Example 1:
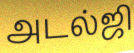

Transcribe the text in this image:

அடல்ஜி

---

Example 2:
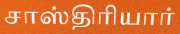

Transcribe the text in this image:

சாஸ்திரியார்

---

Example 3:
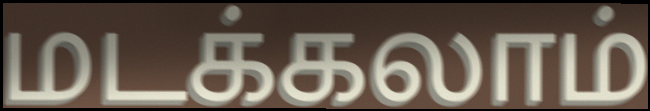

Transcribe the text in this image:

மடக்கலாம்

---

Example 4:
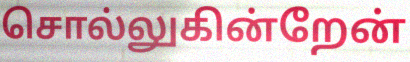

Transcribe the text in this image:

சொல்லுகின்றேன்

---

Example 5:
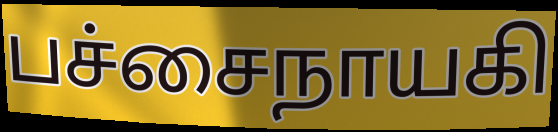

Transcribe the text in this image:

பச்சைநாயகி